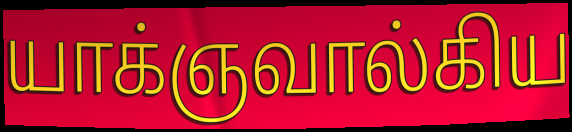
யாக்ஞவால்கிய